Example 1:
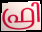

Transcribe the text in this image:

ഫ്രി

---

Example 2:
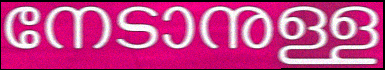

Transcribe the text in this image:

നേടാനുള്ള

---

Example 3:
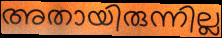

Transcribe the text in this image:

അതായിരുന്നില്ല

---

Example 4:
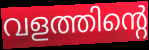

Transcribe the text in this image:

വളത്തിന്റെ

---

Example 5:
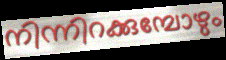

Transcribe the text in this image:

നിന്നിറക്കുമ്പോഴും